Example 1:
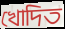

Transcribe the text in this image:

খোদিত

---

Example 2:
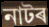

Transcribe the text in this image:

নাটৰ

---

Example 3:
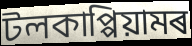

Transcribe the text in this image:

টলকাপ্পিয়ামৰ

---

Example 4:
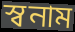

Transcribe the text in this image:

স্বনাম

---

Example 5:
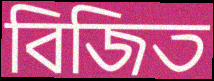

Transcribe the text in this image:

বিজিত